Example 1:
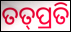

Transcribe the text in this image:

ତତ୍‌ପ୍ରତି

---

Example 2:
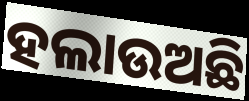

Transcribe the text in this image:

ହଲାଉଅଛି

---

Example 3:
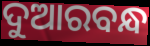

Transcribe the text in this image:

ଦୁଆରବନ୍ଧ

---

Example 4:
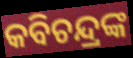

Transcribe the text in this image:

କବିଚନ୍ଦ୍ରଙ୍କ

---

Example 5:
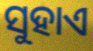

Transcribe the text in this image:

ସୁହାଏ